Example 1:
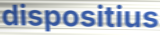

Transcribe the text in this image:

dispositius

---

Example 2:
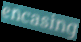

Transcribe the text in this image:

encasing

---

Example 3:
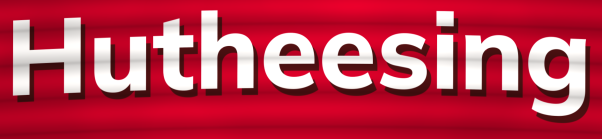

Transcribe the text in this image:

Hutheesing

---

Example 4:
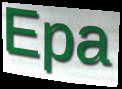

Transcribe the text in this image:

Epa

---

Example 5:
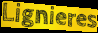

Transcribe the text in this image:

Lignieres